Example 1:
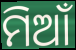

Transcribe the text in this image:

ମିଆଁ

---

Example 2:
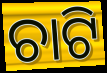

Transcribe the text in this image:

ଚାଟି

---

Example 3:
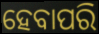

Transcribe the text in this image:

ହେବାପରି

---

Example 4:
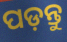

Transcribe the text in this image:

ପଡ଼ନ୍ତୁ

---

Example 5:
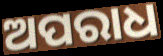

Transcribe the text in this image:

ଅପରାଧ